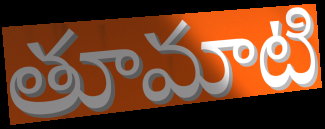
తూమాటి